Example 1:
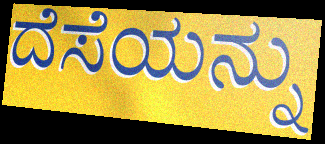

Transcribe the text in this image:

ದೆಸೆಯನ್ನು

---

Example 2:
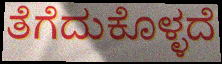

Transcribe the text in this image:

ತೆಗೆದುಕೊಳ್ಳದೆ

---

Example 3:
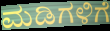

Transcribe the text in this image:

ಮಡಿಗಳಿಗೆ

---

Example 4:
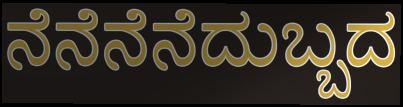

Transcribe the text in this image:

ನೆನೆನೆನೆದುಬ್ಬದ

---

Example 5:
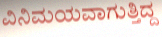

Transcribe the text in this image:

ವಿನಿಮಯವಾಗುತ್ತಿದ್ದ